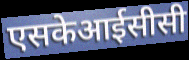
एसकेआईसीसी